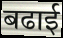
बढाई